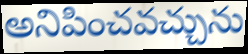
అనిపించవచ్చును